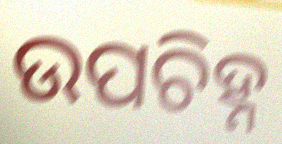
ଉପଚିହ୍ନ